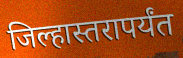
जिल्हास्तरापर्यंत